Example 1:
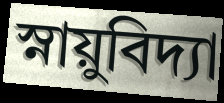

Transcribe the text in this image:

স্নায়ুবিদ্যা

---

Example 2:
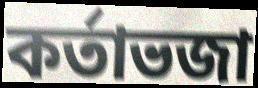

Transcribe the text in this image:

কর্তাভজা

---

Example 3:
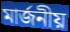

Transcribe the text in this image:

মার্জনীয়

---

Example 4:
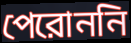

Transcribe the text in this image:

পেরোননি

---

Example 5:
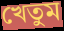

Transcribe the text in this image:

খেতুম